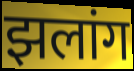
झलांग